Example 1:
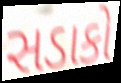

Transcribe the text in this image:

સડાકો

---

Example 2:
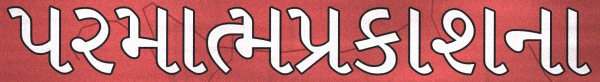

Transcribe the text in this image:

પરમાત્મપ્રકાશના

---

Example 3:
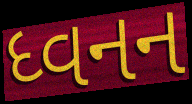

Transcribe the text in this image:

ધ્વનન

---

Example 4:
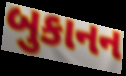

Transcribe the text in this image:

બુકાનન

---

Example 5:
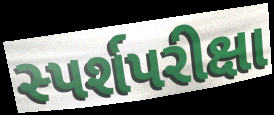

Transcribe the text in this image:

સ્પર્શપરીક્ષા